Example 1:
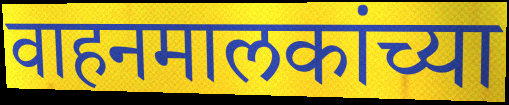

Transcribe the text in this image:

वाहनमालकांच्या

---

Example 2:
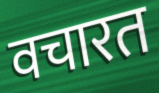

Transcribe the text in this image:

वचारत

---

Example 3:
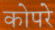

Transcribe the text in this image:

कोपरे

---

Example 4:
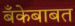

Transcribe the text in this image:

बँकेबाबत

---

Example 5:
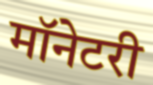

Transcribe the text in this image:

मॉनेटरी